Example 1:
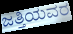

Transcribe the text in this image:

ಜತ್ತಿಯವರ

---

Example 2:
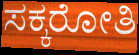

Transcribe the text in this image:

ಸಕ್ಕರೋತಿ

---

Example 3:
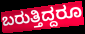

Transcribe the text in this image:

ಬರುತ್ತಿದ್ದರೂ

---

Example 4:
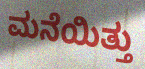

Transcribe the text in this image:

ಮನೆಯಿತ್ತು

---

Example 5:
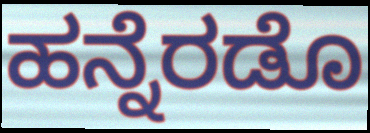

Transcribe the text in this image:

ಹನ್ನೆರಡೊ